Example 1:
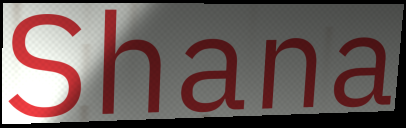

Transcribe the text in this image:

Shana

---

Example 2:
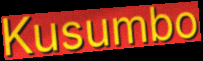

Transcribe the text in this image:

Kusumbo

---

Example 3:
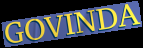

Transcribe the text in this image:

GOVINDA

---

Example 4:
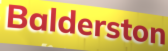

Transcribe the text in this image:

Balderston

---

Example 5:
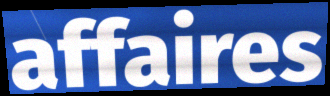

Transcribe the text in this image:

affaires